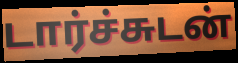
டார்ச்சுடன்